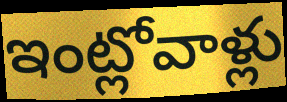
ఇంట్లోవాళ్లు